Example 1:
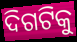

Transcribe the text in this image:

ଦିଗଟିକୁ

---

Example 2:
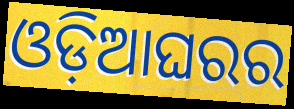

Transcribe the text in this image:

ଓଡ଼ିଆଘରର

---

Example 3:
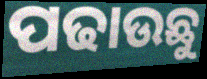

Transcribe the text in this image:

ପଢାଉଛୁ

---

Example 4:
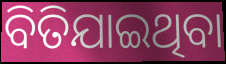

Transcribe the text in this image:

ବିତିଯାଇଥିବା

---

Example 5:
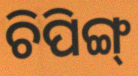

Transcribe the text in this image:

ଚିପିଙ୍ଗ୍